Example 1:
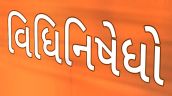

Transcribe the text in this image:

વિધિનિષેધો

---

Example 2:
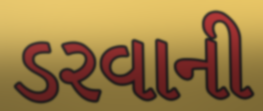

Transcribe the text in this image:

ડરવાની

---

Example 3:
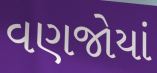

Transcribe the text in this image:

વણજોયાં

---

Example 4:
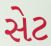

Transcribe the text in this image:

સેટ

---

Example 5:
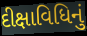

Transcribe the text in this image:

દીક્ષાવિધિનું